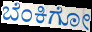
ಬೆಂಕಿಗೋ